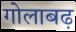
गोलाबढ़